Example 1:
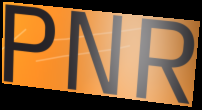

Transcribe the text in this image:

PNR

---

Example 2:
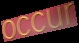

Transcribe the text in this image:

occur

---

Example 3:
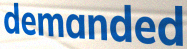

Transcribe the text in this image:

demanded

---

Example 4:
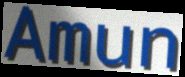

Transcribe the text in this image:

Amun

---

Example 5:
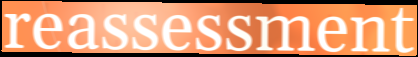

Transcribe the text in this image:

reassessment